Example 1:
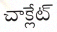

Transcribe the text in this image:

చాక్లేట్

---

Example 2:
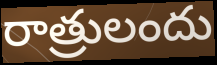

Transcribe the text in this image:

రాత్రులందు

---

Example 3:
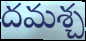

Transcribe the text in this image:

దమశ్చ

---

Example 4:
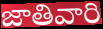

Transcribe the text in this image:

జాతివారి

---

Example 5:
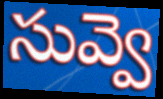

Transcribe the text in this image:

సువ్వె